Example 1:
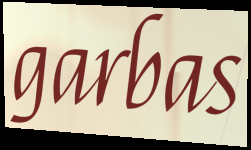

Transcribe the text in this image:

garbas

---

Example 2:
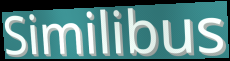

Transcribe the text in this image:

Similibus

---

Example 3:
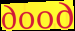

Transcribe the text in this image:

dood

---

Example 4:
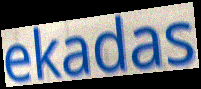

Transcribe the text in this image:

ekadas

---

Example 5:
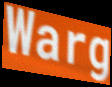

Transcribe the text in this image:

Warg